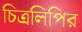
চিত্রলিপির